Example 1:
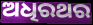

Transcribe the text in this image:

ଅଧିରଥର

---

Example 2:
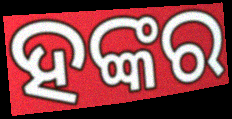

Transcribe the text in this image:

ହଙ୍କର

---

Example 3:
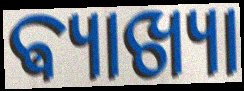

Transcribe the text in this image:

ଵ୍ୟାଖ୍ୟା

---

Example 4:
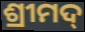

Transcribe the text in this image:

ଶ୍ରୀମଦ୍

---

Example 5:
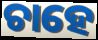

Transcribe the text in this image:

ଚାହେ